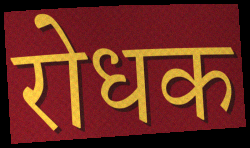
रोधक